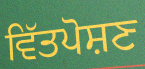
ਵਿੱਤਪੋਸ਼ਣ